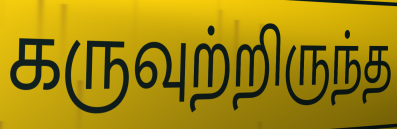
கருவுற்றிருந்த